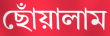
ছোঁয়ালাম